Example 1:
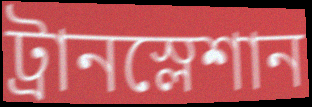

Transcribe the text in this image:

ট্রানস্লেশান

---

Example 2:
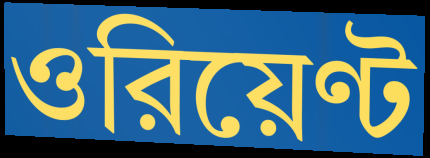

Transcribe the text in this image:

ওরিয়েণ্ট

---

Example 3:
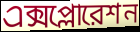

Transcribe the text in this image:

এক্সপ্লোরেশন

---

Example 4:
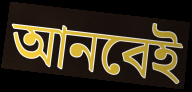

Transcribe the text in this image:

আনবেই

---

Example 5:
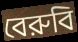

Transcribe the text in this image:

বেরুবি